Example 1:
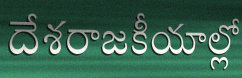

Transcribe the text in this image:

దేశరాజకీయాల్లో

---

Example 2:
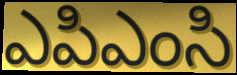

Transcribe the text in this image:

ఎపిఎంసి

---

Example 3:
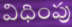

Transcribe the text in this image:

విధింపు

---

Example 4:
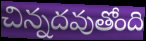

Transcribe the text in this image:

చిన్నదవుతోంది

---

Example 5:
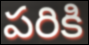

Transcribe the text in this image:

పరికి